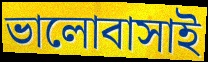
ভালোবাসাই